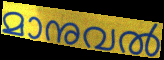
മാനുവൽ